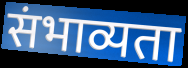
संभाव्यता